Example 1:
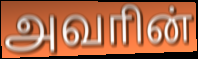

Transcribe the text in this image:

அவரின்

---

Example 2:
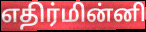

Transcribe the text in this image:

எதிர்மின்னி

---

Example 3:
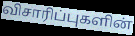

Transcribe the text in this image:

விசாரிப்புகளின்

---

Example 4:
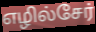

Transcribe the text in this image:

எழில்சேர்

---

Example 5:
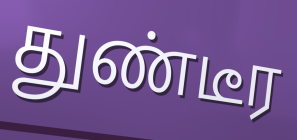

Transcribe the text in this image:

துண்டீர